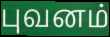
புவனம்